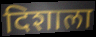
दिशाला